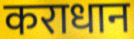
कराधान